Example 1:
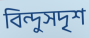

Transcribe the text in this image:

বিন্দুসদৃশ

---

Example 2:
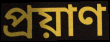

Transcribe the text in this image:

প্ৰয়াণ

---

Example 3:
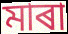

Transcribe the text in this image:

মাৰা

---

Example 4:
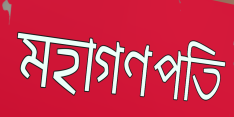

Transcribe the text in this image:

মহাগণপতি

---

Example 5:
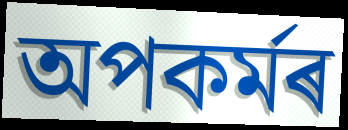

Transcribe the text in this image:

অপকৰ্মৰ